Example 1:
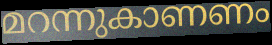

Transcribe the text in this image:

മറന്നുകാണണം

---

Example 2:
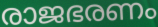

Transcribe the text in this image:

രാജഭരണം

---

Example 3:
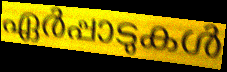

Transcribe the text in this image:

ഏർപ്പാടുകൾ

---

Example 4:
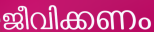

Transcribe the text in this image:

ജീവിക്കണം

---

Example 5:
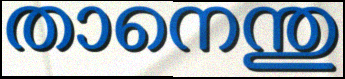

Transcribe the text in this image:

താനെന്തു